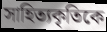
সাহিত্যকৃতিকে